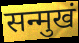
सन्मुखं